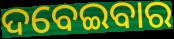
ଦବେଇବାର